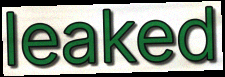
leaked